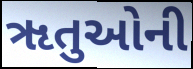
ૠતુઓની